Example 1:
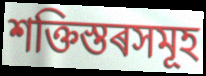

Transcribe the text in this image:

শক্তিস্তৰসমূহ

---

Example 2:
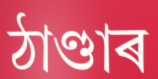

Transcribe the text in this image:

ঠাণ্ডাৰ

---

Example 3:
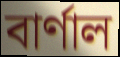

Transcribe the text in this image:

বাৰ্ণাল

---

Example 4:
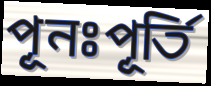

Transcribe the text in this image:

পূনঃপূৰ্তি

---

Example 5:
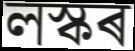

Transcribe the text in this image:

লস্কৰ